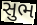
સુભ